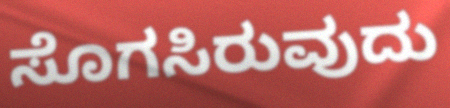
ಸೊಗಸಿರುವುದು